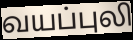
வயப்புலி